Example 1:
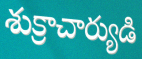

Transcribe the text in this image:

శుక్రాచార్యుడి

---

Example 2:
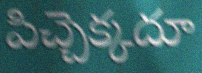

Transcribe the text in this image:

పిచ్చెక్కదూ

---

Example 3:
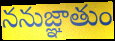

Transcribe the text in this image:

ననుజ్ఞాతుం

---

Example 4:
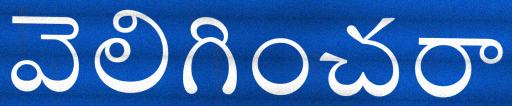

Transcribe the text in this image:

వెలిగించరా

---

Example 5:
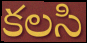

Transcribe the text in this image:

కలసి